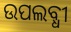
ଉପଲବ୍ଧୀ